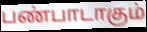
பண்பாடாகும்